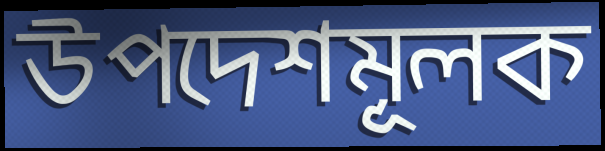
উপদেশমূলক